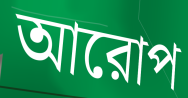
আরোপ